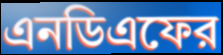
এনডিএফের